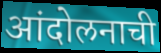
आंदोलनाची